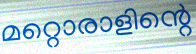
മറ്റൊരാളിന്റെ